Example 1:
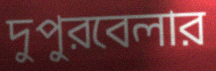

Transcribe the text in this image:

দুপুরবেলার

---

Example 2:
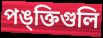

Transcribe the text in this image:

পঙ্ক্তিগুলি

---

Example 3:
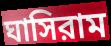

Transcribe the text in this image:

ঘাসিরাম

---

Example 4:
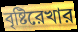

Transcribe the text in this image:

বৃষ্টিরেখার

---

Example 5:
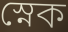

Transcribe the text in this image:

স্নেক